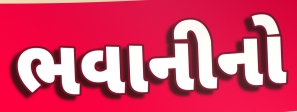
ભવાનીનો